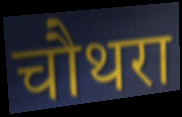
चौथरा